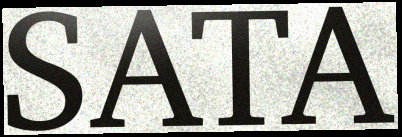
SATA